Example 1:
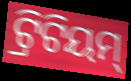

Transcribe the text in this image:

ଟ୍ରିଟିୟମ୍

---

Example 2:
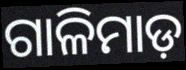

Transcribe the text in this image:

ଗାଳିମାଡ଼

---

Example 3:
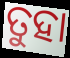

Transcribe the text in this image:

ତୁହା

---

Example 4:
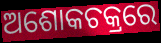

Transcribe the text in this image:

ଅଶୋକଚକ୍ରରେ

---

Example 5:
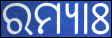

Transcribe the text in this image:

ରମ୍ୟାଃ